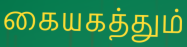
கையகத்தும்